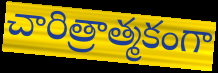
చారిత్రాత్మకంగా